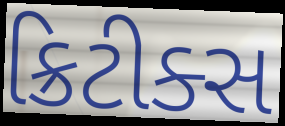
ક્રિટીક્સ